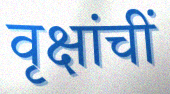
वृक्षांचीं